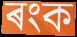
ৰংক